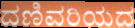
ದಣಿವರಿಯದ